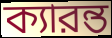
ক্যারন্ত